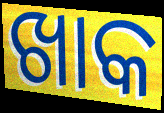
ଖାକ